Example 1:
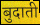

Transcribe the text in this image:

बुदाती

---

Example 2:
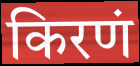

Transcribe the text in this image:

किरणं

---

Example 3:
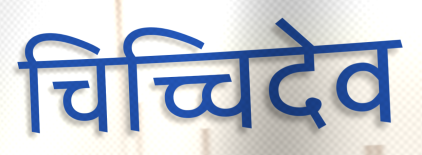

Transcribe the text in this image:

चिच्चिदेव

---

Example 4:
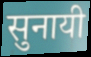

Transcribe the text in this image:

सुनायी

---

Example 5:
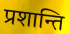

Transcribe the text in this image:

प्रशान्ति